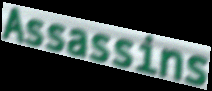
Assassins